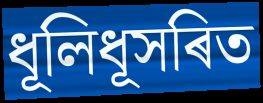
ধূলিধূসৰিত